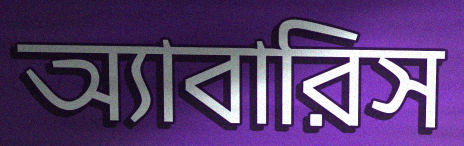
অ্যাবারিস